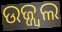
ଉଜ୍ଜ୍ୱଲ